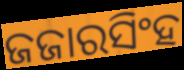
ଜଜାରସିଂହ